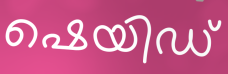
ഷെയിഡ്